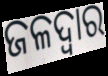
ଜଳଦ୍ୱାର